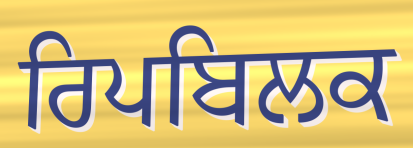
ਰਿਪਬਿਲਕ